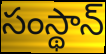
సంస్థాన్